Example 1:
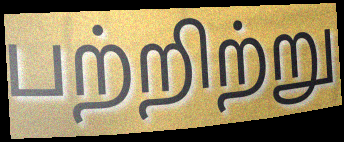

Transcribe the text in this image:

பற்றிற்று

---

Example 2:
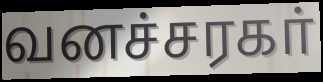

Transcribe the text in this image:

வனச்சரகர்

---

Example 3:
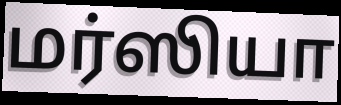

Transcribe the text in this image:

மர்ஸியா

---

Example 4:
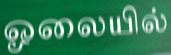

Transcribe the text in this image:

ஓலையில்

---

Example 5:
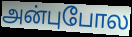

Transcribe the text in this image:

அன்புபோல